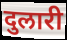
दुलारी